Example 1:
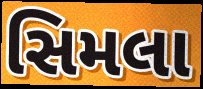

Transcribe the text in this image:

સિમલા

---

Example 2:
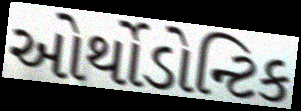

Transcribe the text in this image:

ઓર્થોડોન્ટિક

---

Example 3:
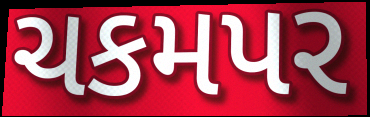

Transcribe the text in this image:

ચકમપર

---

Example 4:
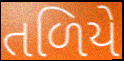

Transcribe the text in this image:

તળિયે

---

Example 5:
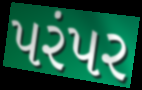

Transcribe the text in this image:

પરંપર